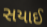
સયાઈ